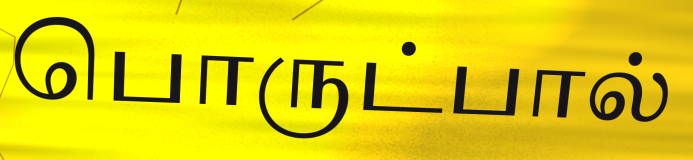
பொருட்பால்